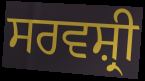
ਸਰਵਸ਼੍ਰੀ